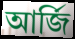
আর্জি